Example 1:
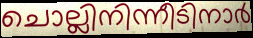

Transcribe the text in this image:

ചൊല്ലിനിന്നീടിനാർ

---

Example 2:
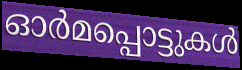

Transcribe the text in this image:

ഓർമപ്പൊട്ടുകൾ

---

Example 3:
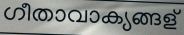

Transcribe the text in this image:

ഗീതാവാക്യങ്ങള്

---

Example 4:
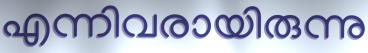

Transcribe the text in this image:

എന്നിവരായിരുന്നു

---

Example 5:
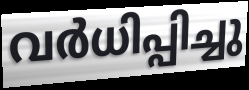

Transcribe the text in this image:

വർധിപ്പിച്ചു